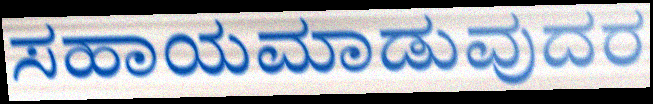
ಸಹಾಯಮಾಡುವುದರ